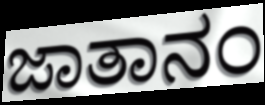
ಜಾತಾನಂ